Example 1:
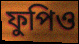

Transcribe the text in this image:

ফুপিও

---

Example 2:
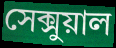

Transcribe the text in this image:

সেক্সুয়াল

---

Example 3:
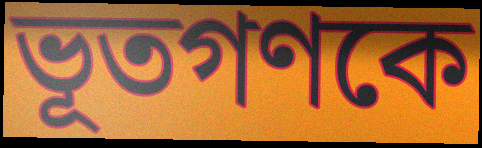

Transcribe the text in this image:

ভূতগণকে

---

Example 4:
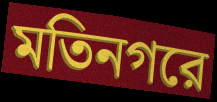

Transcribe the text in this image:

মতিনগরে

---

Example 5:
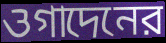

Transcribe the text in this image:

ওগাদেনের